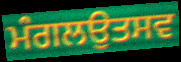
ਮੰਗਲਉਤਸਵ